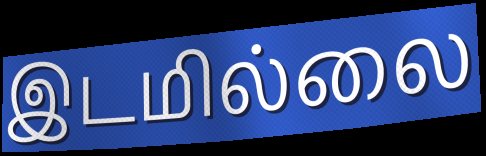
இடமில்லை